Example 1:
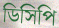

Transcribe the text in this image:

ডিসিপি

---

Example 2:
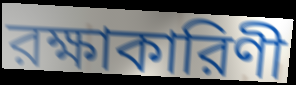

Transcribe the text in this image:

রক্ষাকারিণী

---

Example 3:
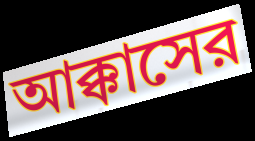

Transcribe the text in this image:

আক্কাসের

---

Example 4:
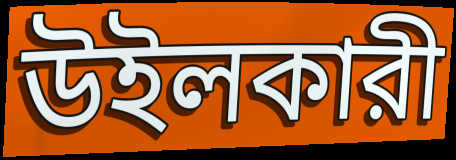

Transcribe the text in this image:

উইলকারী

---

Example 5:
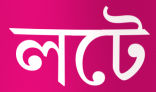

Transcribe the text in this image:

লটে